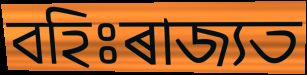
বহিঃৰাজ্যত